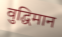
वुद्धिमान